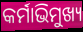
କର୍ମାଭିମୁଖ୍ୟ